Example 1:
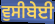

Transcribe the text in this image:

ਵੁਸੀਬੇਈ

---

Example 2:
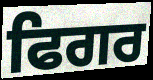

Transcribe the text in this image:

ਫਿਗਰ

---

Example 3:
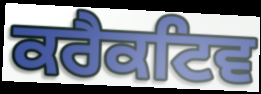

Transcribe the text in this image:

ਕਰੈਕਟਿਵ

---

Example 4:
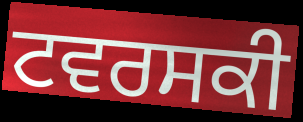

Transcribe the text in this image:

ਟਵਰਸਕੀ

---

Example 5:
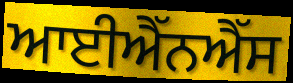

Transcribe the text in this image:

ਆਈਐੱਨਐੱਸ